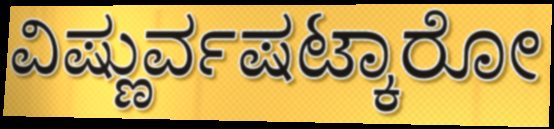
ವಿಷ್ಣುರ್ವಷಟ್ಕಾರೋ